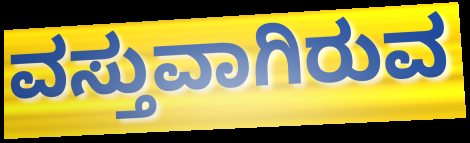
ವಸ್ತುವಾಗಿರುವ